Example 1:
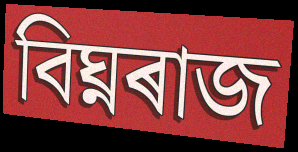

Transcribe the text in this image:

বিঘ্নৰাজ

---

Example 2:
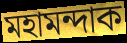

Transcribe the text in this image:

মহামন্দাক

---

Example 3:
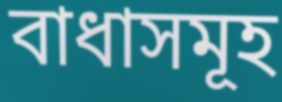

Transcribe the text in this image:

বাধাসমূহ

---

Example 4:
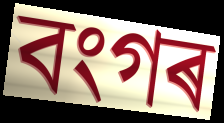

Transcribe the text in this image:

বংগৰ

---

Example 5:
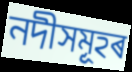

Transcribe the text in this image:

নদীসমূহৰ